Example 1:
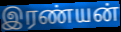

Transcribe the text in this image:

இரண்யன்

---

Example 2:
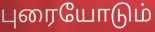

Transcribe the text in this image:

புரையோடும்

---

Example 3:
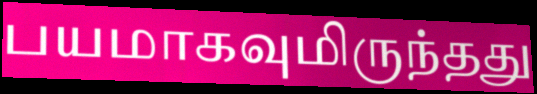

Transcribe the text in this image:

பயமாகவுமிருந்தது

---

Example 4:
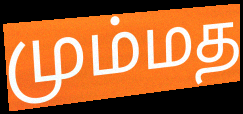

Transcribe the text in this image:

மும்மத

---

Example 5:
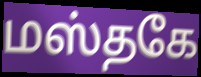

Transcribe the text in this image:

மஸ்தகே